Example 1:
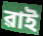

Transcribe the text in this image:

ৱাই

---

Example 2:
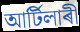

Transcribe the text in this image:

আৰ্টিলাৰী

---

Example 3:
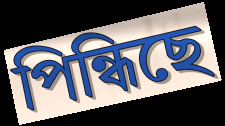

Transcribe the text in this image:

পিন্ধিছে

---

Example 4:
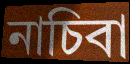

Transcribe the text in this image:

নাচিবা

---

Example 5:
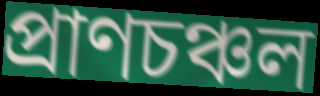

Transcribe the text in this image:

প্ৰাণচঞ্চল